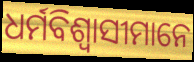
ଧର୍ମବିଶ୍ଵାସୀମାନେ